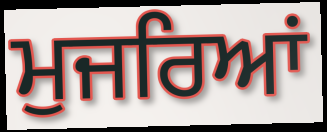
ਮੁਜਰਿਆਂ